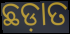
ଛଡ଼ାତ